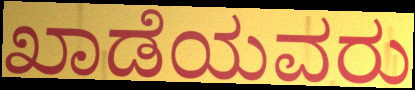
ಖಾಡೆಯವರು